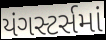
યંગસ્ટર્સમાં